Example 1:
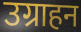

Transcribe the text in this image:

उग्राहन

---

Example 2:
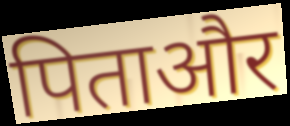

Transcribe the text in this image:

पिताऔर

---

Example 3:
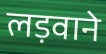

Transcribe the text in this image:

लड़वाने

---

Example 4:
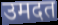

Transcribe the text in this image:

उमदत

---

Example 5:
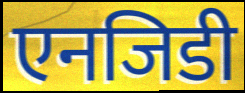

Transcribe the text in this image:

एनजिडी